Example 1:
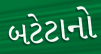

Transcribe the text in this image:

બટેટાનો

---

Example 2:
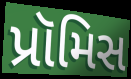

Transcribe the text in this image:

પ્રૉમિસ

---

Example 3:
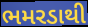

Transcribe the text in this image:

ભમરડાથી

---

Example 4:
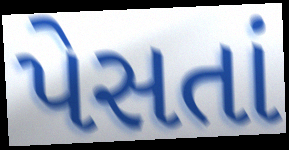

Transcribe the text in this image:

પેસતાં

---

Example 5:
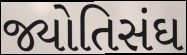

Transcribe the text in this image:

જ્યોતિસંઘ